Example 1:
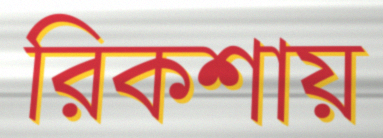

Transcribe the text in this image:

রিকশায়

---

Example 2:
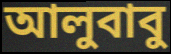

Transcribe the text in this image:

আলুবাবু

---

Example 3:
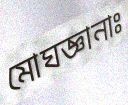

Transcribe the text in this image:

মোঘজ্ঞানাঃ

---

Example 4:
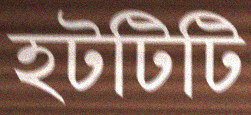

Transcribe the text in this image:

হটটিটি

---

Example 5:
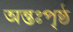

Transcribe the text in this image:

অন্তঃপৃষ্ঠ